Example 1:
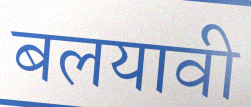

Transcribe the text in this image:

बलयावी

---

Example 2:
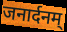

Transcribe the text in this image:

जनार्दनम्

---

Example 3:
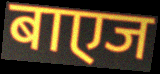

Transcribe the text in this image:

बाएज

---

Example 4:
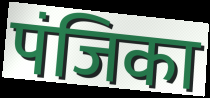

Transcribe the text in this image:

पंजिका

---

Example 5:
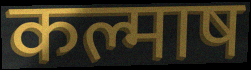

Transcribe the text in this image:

कल्माष